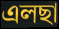
এলছা